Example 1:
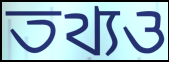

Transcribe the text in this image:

তথ্যও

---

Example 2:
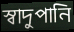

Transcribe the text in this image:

স্বাদুপানি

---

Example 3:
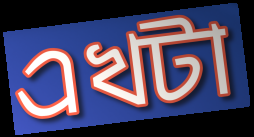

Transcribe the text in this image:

এখটা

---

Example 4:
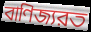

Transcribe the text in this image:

বাণিজ্যরত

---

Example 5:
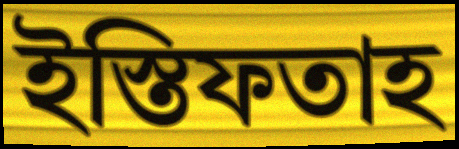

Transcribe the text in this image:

ইস্তিফতাহ